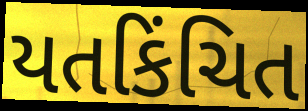
યતકિંચિત